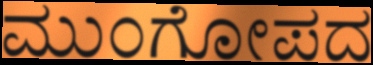
ಮುಂಗೋಪದ